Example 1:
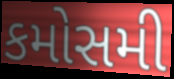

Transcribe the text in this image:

કમોસમી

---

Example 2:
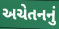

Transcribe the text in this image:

અચેતનનું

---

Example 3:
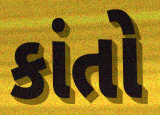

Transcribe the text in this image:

કાંતો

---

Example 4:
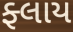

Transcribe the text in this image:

ફ્લાય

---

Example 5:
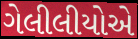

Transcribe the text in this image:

ગેલીલીયોએ